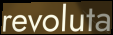
revoluta